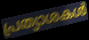
പ്രത്യാശകൾ